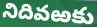
నిదివఱకు